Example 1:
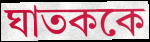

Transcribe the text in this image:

ঘাতককে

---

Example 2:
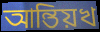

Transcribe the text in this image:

আন্তিয়খ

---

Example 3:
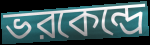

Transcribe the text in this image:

ভরকেন্দ্রে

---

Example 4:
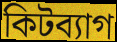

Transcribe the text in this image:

কিটব্যাগ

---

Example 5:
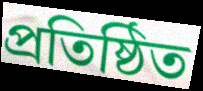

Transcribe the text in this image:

প্রতিষ্ঠিত